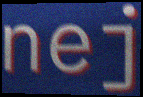
nej